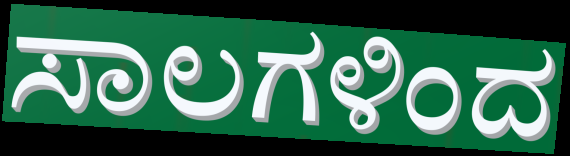
ಸಾಲಗಳಿಂದ